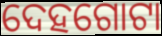
ଦେହଗୋଟା